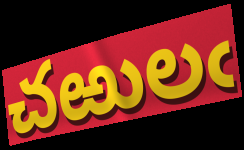
చఱులఁ